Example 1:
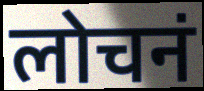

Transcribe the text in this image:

लोचनं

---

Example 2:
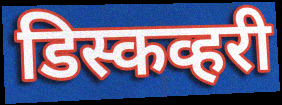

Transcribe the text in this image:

डिस्कव्हरी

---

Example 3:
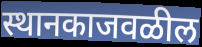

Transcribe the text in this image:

स्थानकाजवळील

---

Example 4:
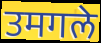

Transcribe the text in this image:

उमगले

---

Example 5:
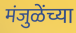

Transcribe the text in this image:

मंजुळेंच्या